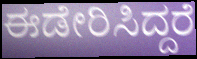
ಈಡೇರಿಸಿದ್ದರೆ